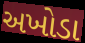
અખોડા